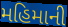
મહિમાની